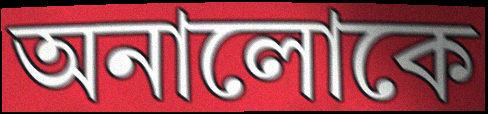
অনালোকে